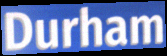
Durham